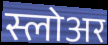
स्लोअर